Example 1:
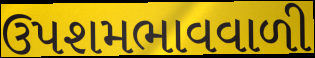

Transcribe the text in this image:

ઉપશમભાવવાળી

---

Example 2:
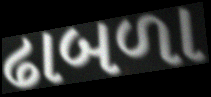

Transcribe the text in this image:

ઢાબળા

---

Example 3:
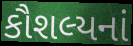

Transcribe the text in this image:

કૌશલ્યનાં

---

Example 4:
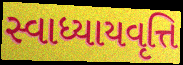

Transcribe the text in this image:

સ્વાધ્યાયવૃત્તિ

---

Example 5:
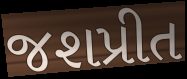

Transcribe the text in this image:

જશપ્રીત